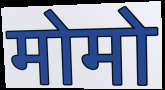
मोमो